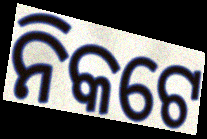
ନିକଟେ